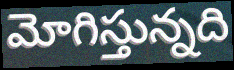
మోగిస్తున్నది